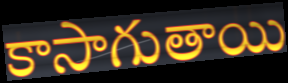
కాసాగుతాయి